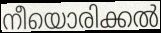
നീയൊരിക്കൽ